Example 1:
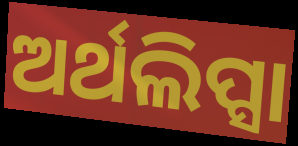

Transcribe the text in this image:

ଅର୍ଥଲିପ୍ସା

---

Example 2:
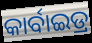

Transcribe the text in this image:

କାର୍ବାଇଡ୍ର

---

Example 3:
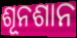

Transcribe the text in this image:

ଶୂନଶାନ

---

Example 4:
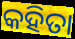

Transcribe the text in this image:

କହିତା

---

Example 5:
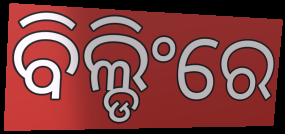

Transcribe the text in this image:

ବିଲ୍ଡିଂରେ